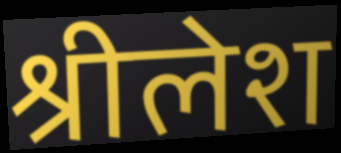
श्रीलेश